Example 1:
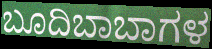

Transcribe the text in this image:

ಬೂದಿಬಾಬಾಗಳ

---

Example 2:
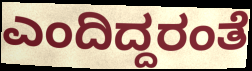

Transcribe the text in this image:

ಎಂದಿದ್ದರಂತೆ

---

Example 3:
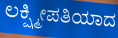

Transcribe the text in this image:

ಲಕ್ಷ್ಮೀಪತಿಯಾದ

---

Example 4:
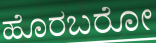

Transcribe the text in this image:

ಹೊರಬರೋ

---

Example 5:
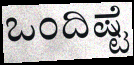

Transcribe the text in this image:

ಒಂದಿಷ್ಟೆ